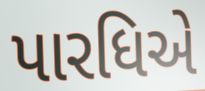
પારધિએ